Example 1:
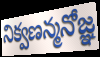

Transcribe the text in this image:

నిక్వణన్మనోజ్ఞ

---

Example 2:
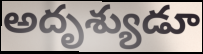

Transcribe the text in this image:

అదృశ్యుడూ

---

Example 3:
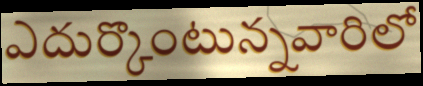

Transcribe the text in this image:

ఎదుర్కొంటున్నవారిలో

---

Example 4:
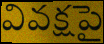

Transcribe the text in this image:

వివక్షపై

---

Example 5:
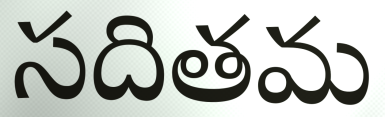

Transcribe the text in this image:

సదితమ